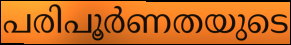
പരിപൂർണതയുടെ